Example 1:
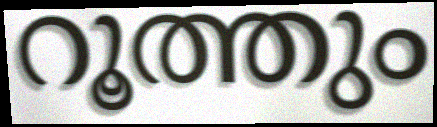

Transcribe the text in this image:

റൂത്തും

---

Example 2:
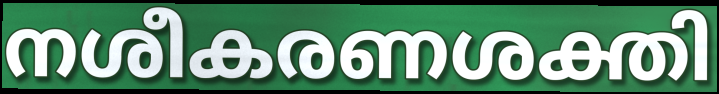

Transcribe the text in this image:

നശീകരണശക്തി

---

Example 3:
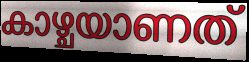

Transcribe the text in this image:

കാഴ്ചയാണത്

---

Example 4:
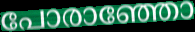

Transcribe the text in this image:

പോരാഞ്ഞോ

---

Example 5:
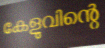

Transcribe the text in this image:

കേളുവിന്റെ